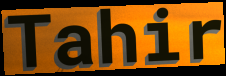
Tahir